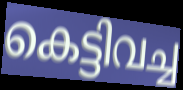
കെട്ടിവച്ച